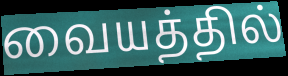
வையத்தில்